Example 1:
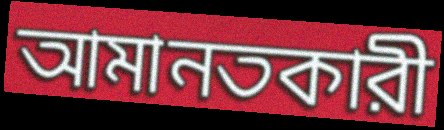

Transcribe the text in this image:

আমানতকারী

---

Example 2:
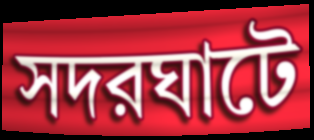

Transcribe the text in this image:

সদরঘাটে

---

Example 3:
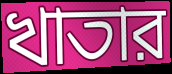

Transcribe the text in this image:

খাতার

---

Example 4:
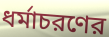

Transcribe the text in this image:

ধর্মাচরণের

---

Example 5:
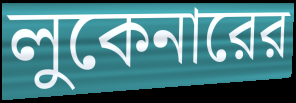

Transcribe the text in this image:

লুকেনারের